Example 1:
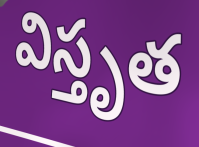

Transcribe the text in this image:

విస్తృత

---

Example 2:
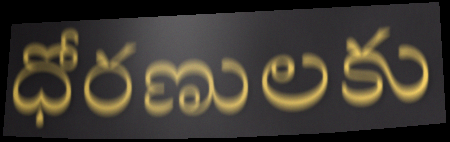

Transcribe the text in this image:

ధోరణులకు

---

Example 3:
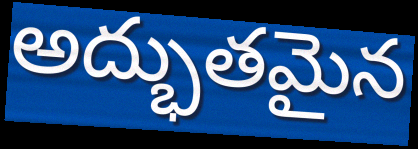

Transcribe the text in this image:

అద్భుతమైన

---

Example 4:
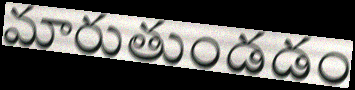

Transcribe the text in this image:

మారుతుండడం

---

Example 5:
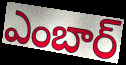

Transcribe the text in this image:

ఎంబార్